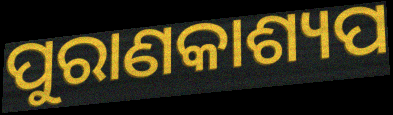
ପୁରାଣକାଶ୍ୟପ